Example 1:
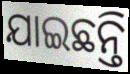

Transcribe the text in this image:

ଯାଇଛନ୍ତି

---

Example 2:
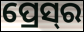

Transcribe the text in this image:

ପ୍ରେସ୍‌ର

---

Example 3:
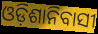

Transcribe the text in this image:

ଓଡ଼ିଶାନିବାସୀ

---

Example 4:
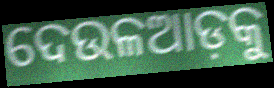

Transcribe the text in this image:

ଦେଉଳଆଡ଼କୁ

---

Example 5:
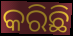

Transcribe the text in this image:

କରିଛି